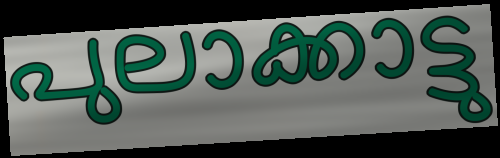
പുലാക്കാട്ടു